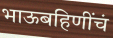
भाऊबहिणींचं